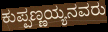
ಕುಪ್ಪಣ್ಣಯ್ಯನವರು